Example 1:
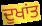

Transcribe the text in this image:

ਦੁਖਾਂਤ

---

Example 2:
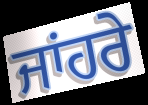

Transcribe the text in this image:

ਜਾਂਹਰੇ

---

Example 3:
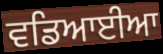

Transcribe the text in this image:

ਵਡਿਆਈਆ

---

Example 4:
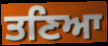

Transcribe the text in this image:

ਤਣਿਆ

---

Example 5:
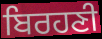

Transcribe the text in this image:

ਬਿਰਹਣੀ